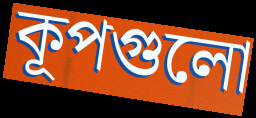
কূপগুলো